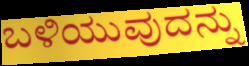
ಬಳಿಯುವುದನ್ನು